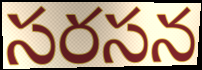
సరసన